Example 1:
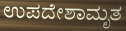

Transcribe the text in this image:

ಉಪದೇಶಾಮೃತ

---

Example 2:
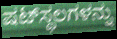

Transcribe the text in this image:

ಷಟ್‌ಸ್ಥಲಗಳನ್ನು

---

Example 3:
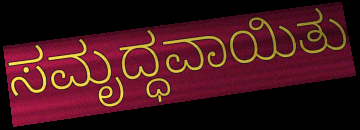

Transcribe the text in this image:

ಸಮೃದ್ಧವಾಯಿತು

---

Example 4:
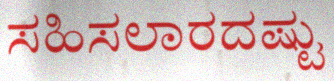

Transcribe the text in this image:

ಸಹಿಸಲಾರದಷ್ಟು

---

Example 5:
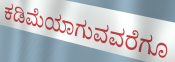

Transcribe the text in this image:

ಕಡಿಮೆಯಾಗುವವರೆಗೂ